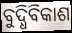
ବୁଦ୍ଧିବିକାଶ